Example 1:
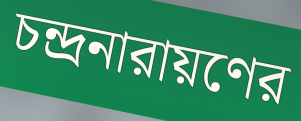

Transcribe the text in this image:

চন্দ্রনারায়ণের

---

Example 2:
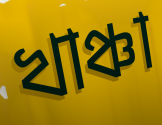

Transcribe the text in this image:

খাঞ্চা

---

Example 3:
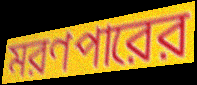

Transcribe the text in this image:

মরণপারের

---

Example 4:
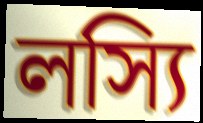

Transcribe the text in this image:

লস্যি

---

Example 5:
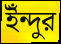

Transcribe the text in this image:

ইঁন্দুর